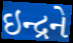
ઇન્દ્રને